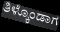
ತಿಳ್ಕೊಂಡಾಗ